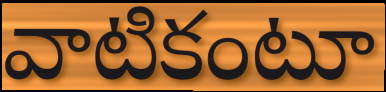
వాటికంటూ